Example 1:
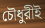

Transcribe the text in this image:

চৌধুরীই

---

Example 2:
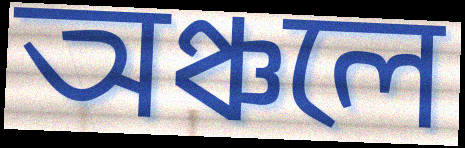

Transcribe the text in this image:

অঞ্চলে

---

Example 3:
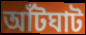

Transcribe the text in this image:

আঁটঘাট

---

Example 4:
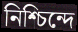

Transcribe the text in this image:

নিশ্চিন্দে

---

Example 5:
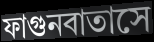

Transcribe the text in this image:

ফাগুনবাতাসে